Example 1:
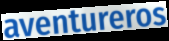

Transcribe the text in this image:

aventureros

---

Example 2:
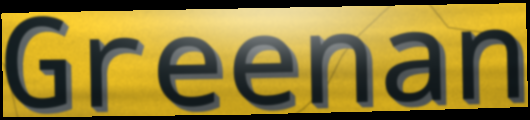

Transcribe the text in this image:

Greenan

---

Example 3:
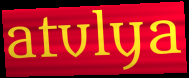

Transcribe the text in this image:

atulya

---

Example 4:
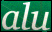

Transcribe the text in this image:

alu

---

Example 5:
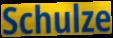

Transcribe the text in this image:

Schulze